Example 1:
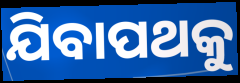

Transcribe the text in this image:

ଯିବାପଥକୁ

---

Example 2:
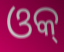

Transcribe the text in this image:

ଓକ୍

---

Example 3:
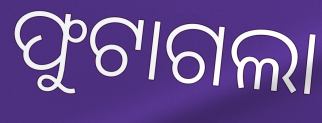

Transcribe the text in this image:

ଫୁଟାଗଲା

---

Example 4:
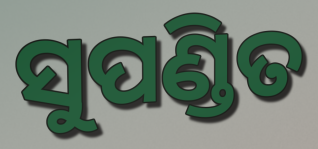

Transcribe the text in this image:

ସୁପଣ୍ଡିତ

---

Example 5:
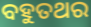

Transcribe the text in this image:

ବହୁତଥର